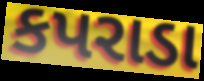
કપરાડા